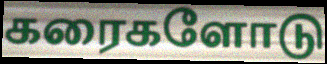
கரைகளோடு